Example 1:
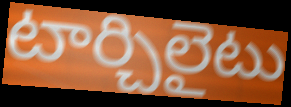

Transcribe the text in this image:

టార్చిలైటు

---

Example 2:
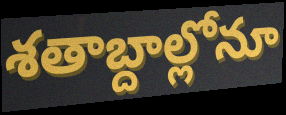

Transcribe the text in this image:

శతాబ్దాల్లోనూ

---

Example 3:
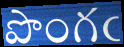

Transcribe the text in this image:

పొంగఁ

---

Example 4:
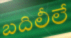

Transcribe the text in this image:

బదిలీలే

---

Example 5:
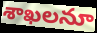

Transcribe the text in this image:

శాఖలనూ